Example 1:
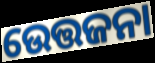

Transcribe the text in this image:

ଉେତ୍ତଜନା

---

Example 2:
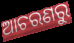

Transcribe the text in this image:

ଆଚରଣରୁ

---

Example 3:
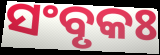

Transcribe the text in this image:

ସଂବୃକଃ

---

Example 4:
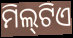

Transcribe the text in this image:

ମିଲ୍‌ଟିଏ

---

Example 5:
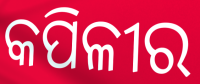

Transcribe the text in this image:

କପିଳୀର